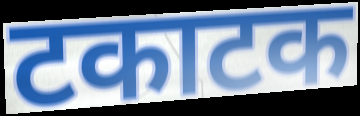
टकाटक